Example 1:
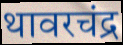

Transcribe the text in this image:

थावरचंद्र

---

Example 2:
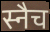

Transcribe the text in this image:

स्नैच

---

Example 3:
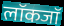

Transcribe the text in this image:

लॉकजॉ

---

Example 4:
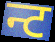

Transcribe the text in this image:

न्ट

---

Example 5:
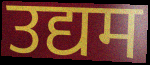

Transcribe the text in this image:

उद्यम